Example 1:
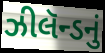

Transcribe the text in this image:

ઝીલૅન્ડનું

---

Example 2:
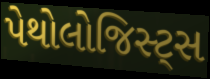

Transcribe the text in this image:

પેથોલોજિસ્ટ્સ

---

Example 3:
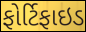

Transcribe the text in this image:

ફોર્ટિફાઇડ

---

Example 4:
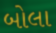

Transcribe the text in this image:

બોલા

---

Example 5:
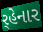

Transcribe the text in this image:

ર્‌હેનાર